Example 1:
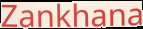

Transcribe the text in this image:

Zankhana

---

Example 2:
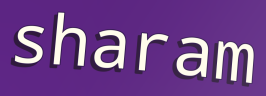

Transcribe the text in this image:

sharam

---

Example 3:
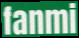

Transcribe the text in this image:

fanmi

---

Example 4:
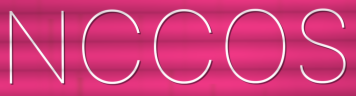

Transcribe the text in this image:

NCCOS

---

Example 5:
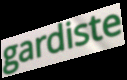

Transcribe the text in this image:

gardiste